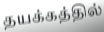
தயக்கத்தில்